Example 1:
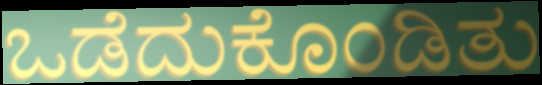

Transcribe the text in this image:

ಒಡೆದುಕೊಂಡಿತು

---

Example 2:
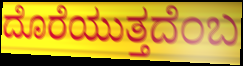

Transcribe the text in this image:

ದೊರೆಯುತ್ತದೆಂಬ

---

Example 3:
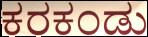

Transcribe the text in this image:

ಕರಕಂಡು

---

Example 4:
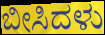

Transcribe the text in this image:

ಬೀಸಿದಳು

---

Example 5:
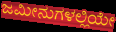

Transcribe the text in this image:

ಜಮೀನುಗಳಲ್ಲಿಯೇ